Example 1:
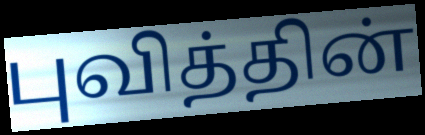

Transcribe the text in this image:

புவித்தின்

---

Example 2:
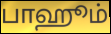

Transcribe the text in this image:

பாஹூம்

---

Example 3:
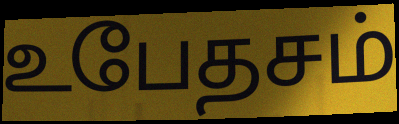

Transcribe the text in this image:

உபேதசம்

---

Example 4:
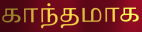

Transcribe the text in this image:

காந்தமாக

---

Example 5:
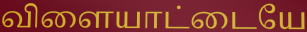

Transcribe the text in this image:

விளையாட்டையே